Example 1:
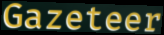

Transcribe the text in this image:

Gazeteer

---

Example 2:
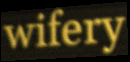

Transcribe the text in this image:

wifery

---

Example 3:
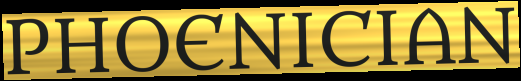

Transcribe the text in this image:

PHOENICIAN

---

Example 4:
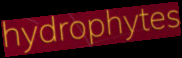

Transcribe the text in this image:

hydrophytes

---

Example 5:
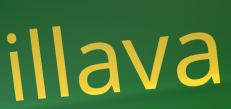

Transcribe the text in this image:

illava